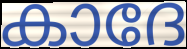
കാദേ